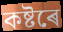
কষ্টৰে